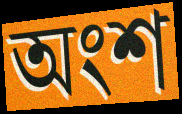
অংশ